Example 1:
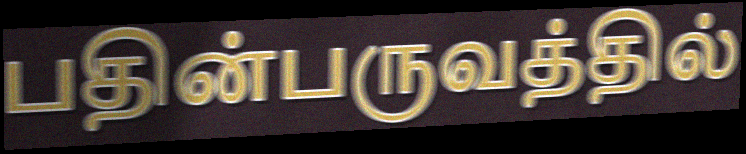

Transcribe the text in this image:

பதின்பருவத்தில்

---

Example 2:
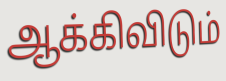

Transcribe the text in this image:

ஆக்கிவிடும்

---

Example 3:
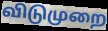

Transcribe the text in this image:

விடுமுறை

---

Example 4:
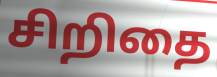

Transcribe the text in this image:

சிறிதை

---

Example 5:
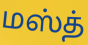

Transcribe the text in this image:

மஸ்த்